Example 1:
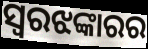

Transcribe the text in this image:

ସ୍ୱରଝଙ୍କାରର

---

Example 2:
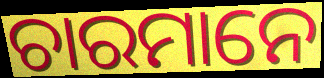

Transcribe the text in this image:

ଚାରମାନେ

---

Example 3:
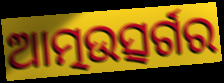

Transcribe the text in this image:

ଆତ୍ମଉତ୍ସର୍ଗର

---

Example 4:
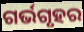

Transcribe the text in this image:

ଗର୍ଭଗୃହର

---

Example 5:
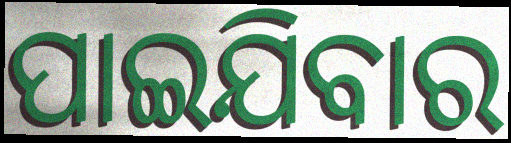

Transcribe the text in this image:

ପାଇଯିବାର